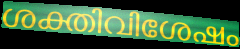
ശക്തിവിശേഷം